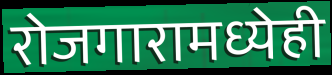
रोजगारामध्येही